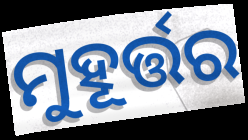
ମୁହୂର୍ତ୍ତର